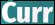
Curr